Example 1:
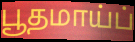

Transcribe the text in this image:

பூதமாய்ப்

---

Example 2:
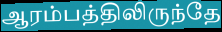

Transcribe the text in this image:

ஆரம்பத்திலிருந்தே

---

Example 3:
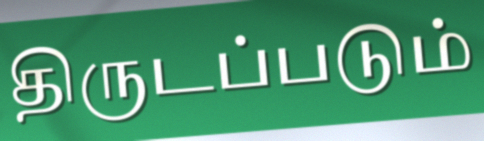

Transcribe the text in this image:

திருடப்படும்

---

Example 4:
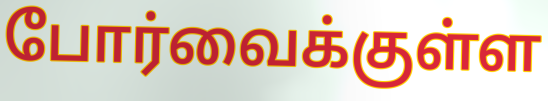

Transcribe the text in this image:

போர்வைக்குள்ள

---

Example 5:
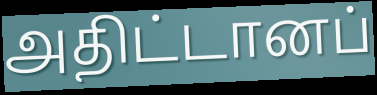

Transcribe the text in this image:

அதிட்டானப்